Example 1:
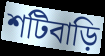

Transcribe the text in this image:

শটিবাড়ি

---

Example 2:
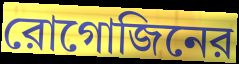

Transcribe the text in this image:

রোগোজিনের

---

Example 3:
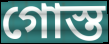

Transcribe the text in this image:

গোস্ত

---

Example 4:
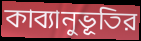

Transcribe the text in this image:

কাব্যানুভূতির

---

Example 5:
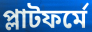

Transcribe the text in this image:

প্লাটফর্মে